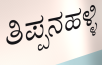
ತಿಪ್ಪನಹಳ್ಳಿ